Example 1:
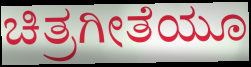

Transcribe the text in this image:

ಚಿತ್ರಗೀತೆಯೂ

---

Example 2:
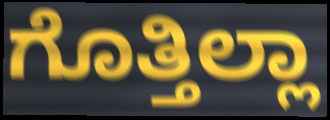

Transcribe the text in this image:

ಗೊತ್ತಿಲ್ಲಾ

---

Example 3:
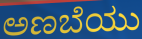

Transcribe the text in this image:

ಅಣಬೆಯು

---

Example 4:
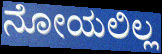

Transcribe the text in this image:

ನೋಯಲಿಲ್ಲ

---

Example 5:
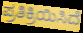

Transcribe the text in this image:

ಪ್ರತಿಕ್ರಿಯಿಸಿದೆ